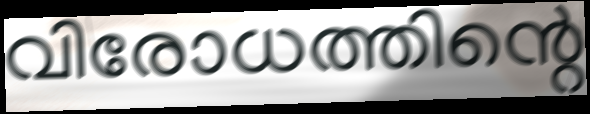
വിരോധത്തിന്റെ